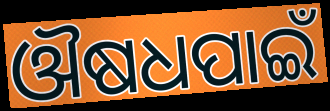
ଔଷଧପାଇଁ